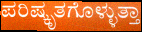
ಪರಿಷ್ಕೃತಗೊಳ್ಳುತ್ತಾ